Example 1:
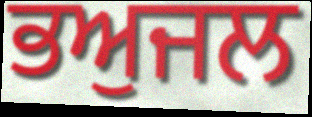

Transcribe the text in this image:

ਭਅੁਜਲ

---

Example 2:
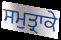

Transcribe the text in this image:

ਸਮੁਤ੍ਰਾਕੇ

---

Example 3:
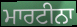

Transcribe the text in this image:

ਮਾਰਟੀਨਾ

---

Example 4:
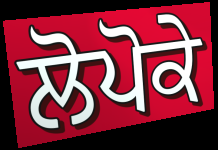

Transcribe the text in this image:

ਲੋਪੋਕੇ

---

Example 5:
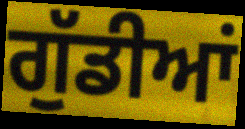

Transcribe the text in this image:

ਗੁੱਡੀਆਂ